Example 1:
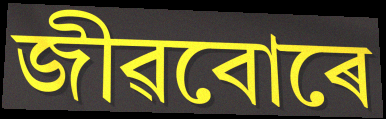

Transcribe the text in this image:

জীৱবোৰে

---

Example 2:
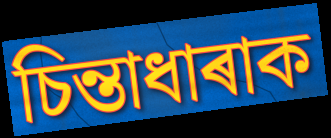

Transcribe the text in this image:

চিন্তাধাৰাক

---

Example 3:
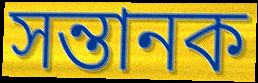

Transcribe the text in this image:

সন্তানক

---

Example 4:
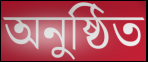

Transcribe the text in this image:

অনুষ্ঠিত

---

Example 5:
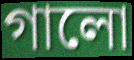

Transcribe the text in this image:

গালো